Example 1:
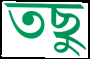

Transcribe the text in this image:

তছু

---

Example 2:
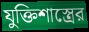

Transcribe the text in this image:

যুক্তিশাস্ত্রের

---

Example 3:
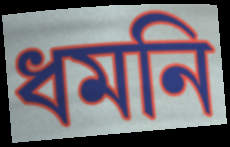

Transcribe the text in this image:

ধমনি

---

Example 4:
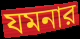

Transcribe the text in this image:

যমনার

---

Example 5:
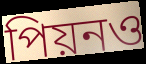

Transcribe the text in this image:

পিয়নও